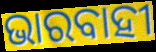
ଭାରବାହୀ